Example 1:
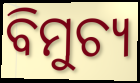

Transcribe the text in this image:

ବିମୁଚ୍ୟ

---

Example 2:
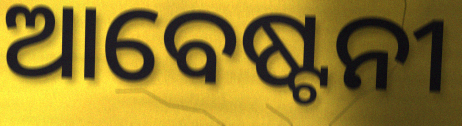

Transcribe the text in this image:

ଆବେଷ୍ଟନୀ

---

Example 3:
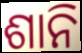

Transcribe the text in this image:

ଶାନି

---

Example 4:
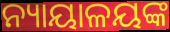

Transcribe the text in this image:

ନ୍ୟାୟାଳୟଙ୍କ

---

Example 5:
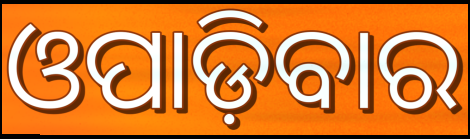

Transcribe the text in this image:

ଓପାଡ଼ିବାର